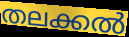
തലക്കൽ